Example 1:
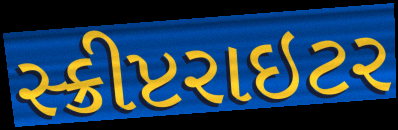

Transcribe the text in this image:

સ્ક્રીપ્ટરાઇટર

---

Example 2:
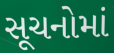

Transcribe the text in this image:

સૂચનોમાં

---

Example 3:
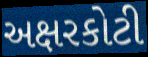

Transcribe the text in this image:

અક્ષરકોટી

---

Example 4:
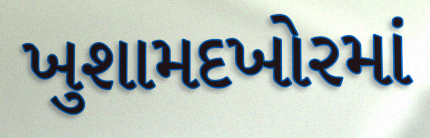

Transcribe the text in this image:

ખુશામદખોરમાં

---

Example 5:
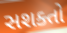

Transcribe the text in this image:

સશક્તો